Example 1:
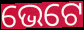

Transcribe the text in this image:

ଭେଟେ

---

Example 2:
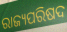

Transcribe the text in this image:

ରାଜ୍ୟପରିଷଦ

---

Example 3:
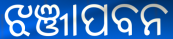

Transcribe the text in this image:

ଝଞ୍ଜାପବନ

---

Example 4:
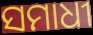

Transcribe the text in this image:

ସମାଧୀ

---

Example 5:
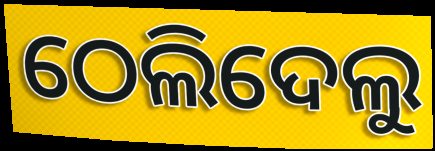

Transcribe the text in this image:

ଠେଲିଦେଲୁ